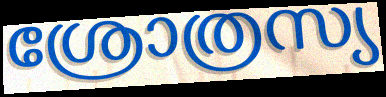
ശ്രോത്രസ്യ